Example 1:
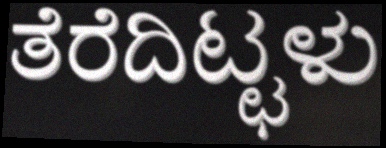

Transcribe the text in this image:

ತೆರೆದಿಟ್ಟಳು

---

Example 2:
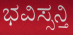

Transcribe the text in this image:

ಭವಿಸ್ಸನ್ತಿ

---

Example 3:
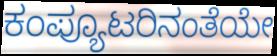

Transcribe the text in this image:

ಕಂಪ್ಯೂಟರಿನಂತೆಯೇ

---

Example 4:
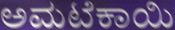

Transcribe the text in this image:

ಅಮಟೆಕಾಯಿ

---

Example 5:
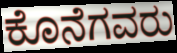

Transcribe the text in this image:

ಕೊನೆಗವರು